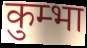
कुम्भा